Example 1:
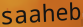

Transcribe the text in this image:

saaheb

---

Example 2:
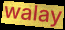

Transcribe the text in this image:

walay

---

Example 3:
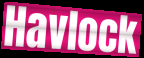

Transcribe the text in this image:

Havlock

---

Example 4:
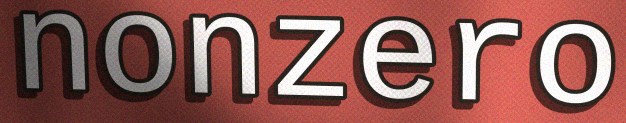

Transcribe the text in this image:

nonzero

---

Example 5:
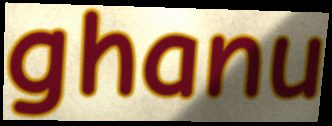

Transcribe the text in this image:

ghanu